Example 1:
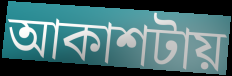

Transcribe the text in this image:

আকাশটায়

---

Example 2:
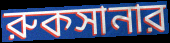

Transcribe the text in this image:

রুকসানার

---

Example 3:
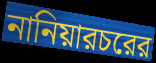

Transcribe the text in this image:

নানিয়ারচরের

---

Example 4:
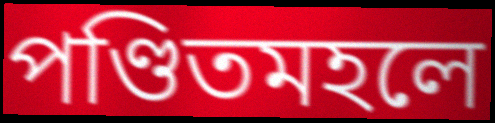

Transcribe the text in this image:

পণ্ডিতমহলে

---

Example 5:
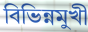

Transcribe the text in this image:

বিভিন্নমুখী